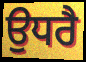
ਉਧਰੈ